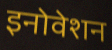
इनोवेशन